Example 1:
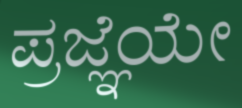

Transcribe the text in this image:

ಪ್ರಜ್ಞೆಯೇ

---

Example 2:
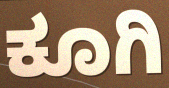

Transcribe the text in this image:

ಕೂಗಿ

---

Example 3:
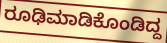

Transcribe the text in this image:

ರೂಢಿಮಾಡಿಕೊಂಡಿದ್ದ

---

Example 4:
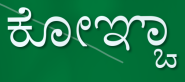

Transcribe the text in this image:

ಕೋಞ್ಚಾ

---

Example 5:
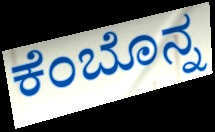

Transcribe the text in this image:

ಕೆಂಬೊನ್ನ